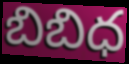
బిబిధ